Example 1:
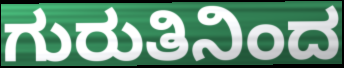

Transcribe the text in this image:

ಗುರುತಿನಿಂದ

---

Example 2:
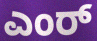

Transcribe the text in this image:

ಎಂರ್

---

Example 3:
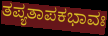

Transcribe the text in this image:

ತಪ್ಯತಾಪಕಭಾವಃ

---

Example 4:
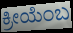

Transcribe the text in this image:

ಕ್ರೀಯೆಂಬ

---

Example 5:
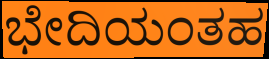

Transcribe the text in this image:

ಭೇದಿಯಂತಹ